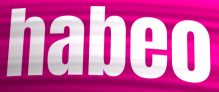
habeo